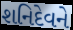
શનિદેવને